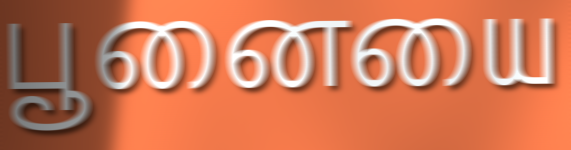
பூனையை